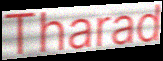
Tharad